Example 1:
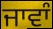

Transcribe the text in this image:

ਜਾਵਾੰ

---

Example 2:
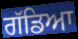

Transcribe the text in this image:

ਗੱਡਿਆ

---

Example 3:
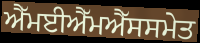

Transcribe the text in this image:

ਐੱਮਈਐੱਮਐੱਸਸਮੇਤ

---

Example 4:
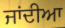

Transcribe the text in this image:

ਜਾਂਦੀਆ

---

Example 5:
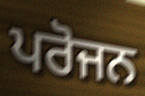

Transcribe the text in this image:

ਪਰੋਜਨ